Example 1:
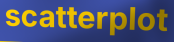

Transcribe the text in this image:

scatterplot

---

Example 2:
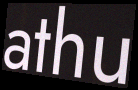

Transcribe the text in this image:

athu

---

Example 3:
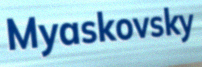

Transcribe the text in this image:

Myaskovsky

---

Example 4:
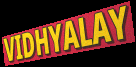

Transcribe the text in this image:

VIDHYALAY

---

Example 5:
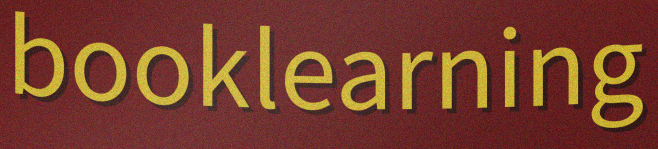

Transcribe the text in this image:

booklearning